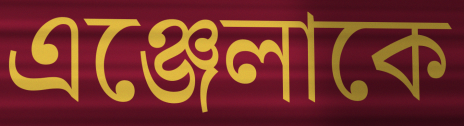
এঞ্জেলাকে